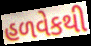
હળવેકથી